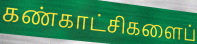
கண்காட்சிகளைப்